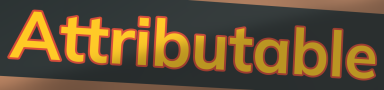
Attributable